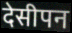
देसीपन